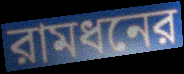
রামধনের